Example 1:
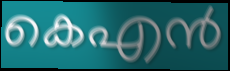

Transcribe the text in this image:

കെഎൻ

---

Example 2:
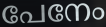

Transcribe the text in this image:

പേനേം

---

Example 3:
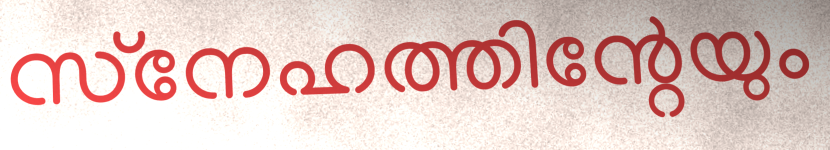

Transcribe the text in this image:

സ്‌നേഹത്തിന്റേയും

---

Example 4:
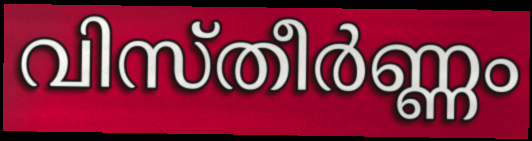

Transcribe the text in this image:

വിസ്തീർണ്ണം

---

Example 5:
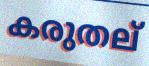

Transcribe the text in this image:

കരുതല്